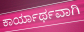
ಕಾರ್ಯಾರ್ಥವಾಗಿ